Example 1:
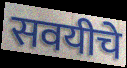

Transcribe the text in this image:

सवयीचे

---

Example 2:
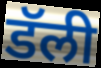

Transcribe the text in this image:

डॅली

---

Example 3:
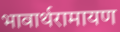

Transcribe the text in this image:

भावार्थरामायण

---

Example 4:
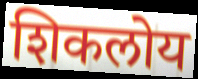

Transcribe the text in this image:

शिकलोय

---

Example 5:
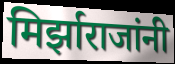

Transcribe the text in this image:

मिर्झाराजांनी